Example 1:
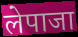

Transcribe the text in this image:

लेपाजा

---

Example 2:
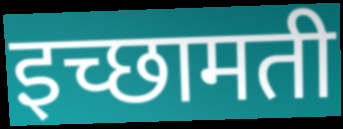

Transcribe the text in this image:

इच्छामती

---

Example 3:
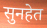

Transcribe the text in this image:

सुनहेत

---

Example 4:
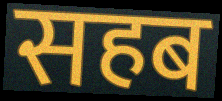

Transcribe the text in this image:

सहब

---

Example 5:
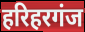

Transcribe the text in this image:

हरिहरगंज